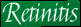
Retinitis